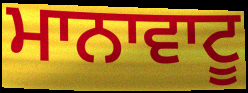
ਮਾਨਾਵਾਟੂ